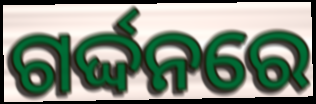
ଗର୍ଦ୍ଦନରେ